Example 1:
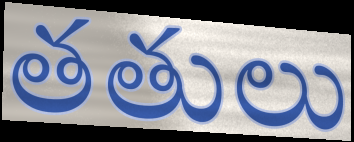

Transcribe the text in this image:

తతులు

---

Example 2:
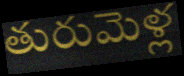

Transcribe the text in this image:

తురుమెళ్ల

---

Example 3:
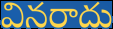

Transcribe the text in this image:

వినరాదు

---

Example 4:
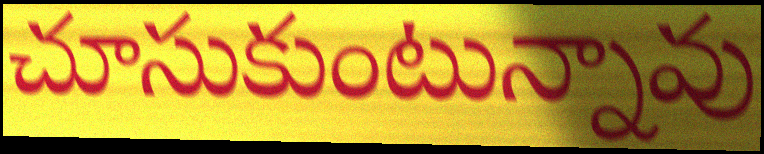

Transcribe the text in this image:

చూసుకుంటున్నావు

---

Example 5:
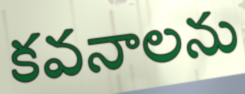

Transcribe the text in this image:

కవనాలను